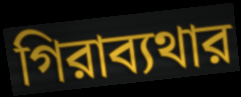
গিরাব্যথার